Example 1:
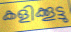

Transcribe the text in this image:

കളിക്കൂട്ടു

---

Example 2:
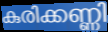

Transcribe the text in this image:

കുരിക്കണ്ണി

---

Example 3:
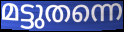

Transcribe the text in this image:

മട്ടുതന്നെ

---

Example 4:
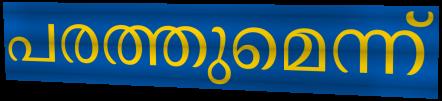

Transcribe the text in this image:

പരത്തുമെന്ന്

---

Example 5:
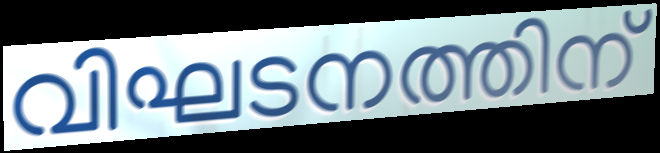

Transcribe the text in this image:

വിഘടനത്തിന്